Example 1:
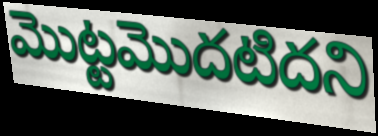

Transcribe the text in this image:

మొట్టమొదటిదని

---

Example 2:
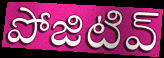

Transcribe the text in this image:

పోజిటివ్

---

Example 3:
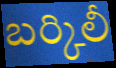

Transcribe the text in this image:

బర్కిలీ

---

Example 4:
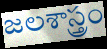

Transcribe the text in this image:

జలశాస్త్రం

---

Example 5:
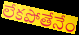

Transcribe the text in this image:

లేకపోతేనేం